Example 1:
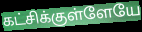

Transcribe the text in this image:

கட்சிக்குள்ளேயே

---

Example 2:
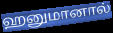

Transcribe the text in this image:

ஹனுமானால்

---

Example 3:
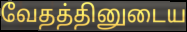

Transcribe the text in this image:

வேதத்தினுடைய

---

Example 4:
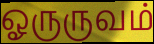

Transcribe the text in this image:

ஓருருவம்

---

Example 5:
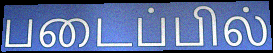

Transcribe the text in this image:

படைப்பில்